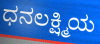
ಧನಲಕ್ಷ್ಮಿಯ